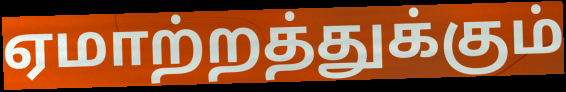
ஏமாற்றத்துக்கும்